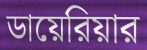
ডায়েরিয়ার